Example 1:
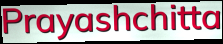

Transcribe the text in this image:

Prayashchitta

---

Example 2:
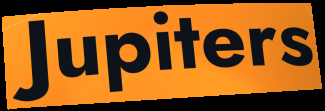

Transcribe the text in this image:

Jupiters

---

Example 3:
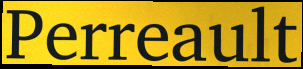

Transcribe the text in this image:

Perreault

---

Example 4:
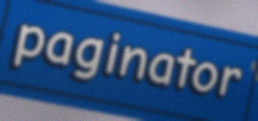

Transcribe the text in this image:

paginator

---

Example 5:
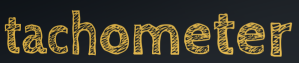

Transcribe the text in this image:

tachometer